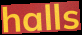
halls